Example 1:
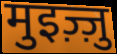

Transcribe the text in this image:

मुइज़्ज़ु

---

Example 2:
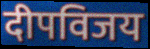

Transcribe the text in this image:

दीपविजय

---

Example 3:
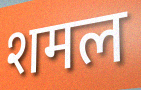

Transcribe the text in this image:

शमल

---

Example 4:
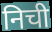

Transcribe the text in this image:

निची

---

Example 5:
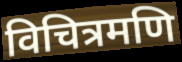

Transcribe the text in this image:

विचित्रमणि